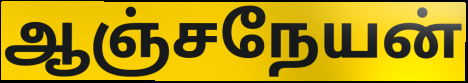
ஆஞ்சநேயன்